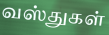
வஸ்துகள்